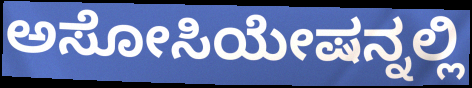
ಅಸೋಸಿಯೇಷನ್ನಲ್ಲಿ